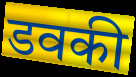
डवकी